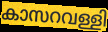
കാസറവള്ളി